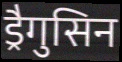
ड्रैगुसिन